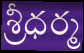
శ్రీధర్మ